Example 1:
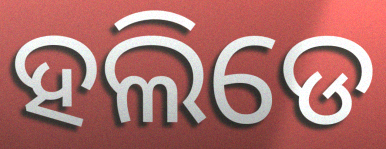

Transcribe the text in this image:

ହଲିଡେ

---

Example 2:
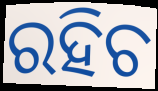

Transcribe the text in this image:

ରହିଚ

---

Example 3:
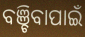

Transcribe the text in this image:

ବଞ୍ଚିବାପାଇଁ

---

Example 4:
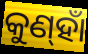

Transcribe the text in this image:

କୁଣ୍‌ହାଁ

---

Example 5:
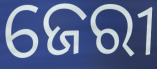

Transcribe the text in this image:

ଜେରୀ